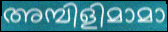
അമ്പിളിമാമാ